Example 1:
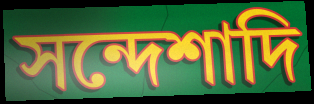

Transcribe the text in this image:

সন্দেশাদি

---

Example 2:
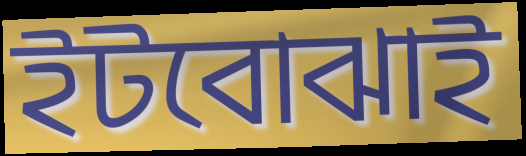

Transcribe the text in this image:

ইটবোঝাই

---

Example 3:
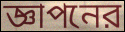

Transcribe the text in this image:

জ্ঞাপনের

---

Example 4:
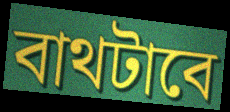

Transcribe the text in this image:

বাথটাবে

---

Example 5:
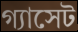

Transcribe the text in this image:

গ্যাসেট